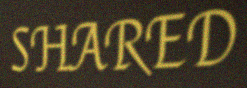
SHARED